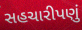
સહચારીપણું